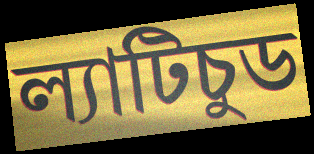
ল্যাটিচুড